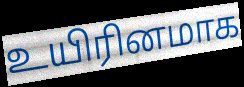
உயிரினமாக